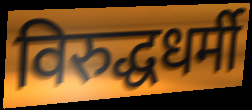
विरुद्धधर्मी